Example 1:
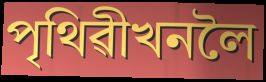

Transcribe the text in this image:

পৃথিৱীখনলৈ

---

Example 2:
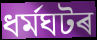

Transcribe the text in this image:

ধৰ্মঘটৰ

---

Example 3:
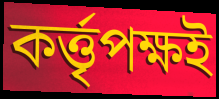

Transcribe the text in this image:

কৰ্ত্তৃপক্ষই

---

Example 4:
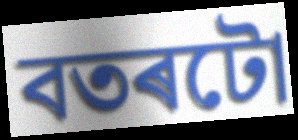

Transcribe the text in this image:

বতৰটো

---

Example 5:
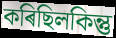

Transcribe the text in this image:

কৰিছিলকিন্তু